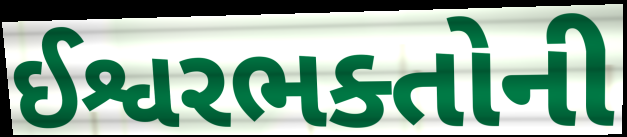
ઈશ્વરભક્તોની